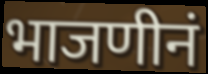
भाजणीनं